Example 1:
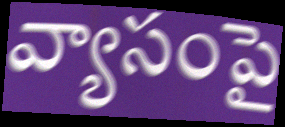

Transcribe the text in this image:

వ్యాసంపై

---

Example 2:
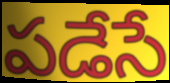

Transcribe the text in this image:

పడేసే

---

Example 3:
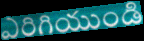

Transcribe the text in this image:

ఎరిగియుండి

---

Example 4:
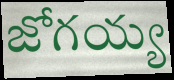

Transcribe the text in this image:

జోగయ్య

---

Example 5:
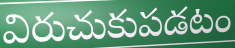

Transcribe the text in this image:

విరుచుకుపడటం